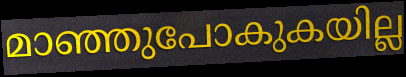
മാഞ്ഞുപോകുകയില്ല